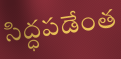
సిద్ధపడేంత